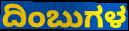
ದಿಂಬುಗಳ